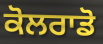
ਕੋਲਰਾਡੋ